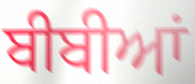
ਬੀਬੀਆਂ